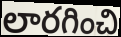
లారగించి